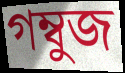
গম্বুজ